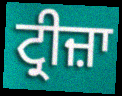
ਟ੍ਰੀਜ਼ਾ